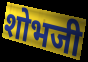
शोभजी